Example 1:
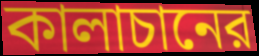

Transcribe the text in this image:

কালাচানের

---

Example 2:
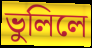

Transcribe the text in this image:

ভুলিলে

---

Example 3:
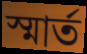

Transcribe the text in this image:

স্মার্ত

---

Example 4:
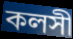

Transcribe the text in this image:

কলসী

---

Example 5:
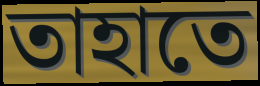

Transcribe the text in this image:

তাহাতে